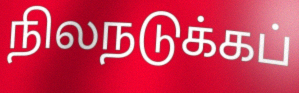
நிலநடுக்கப்